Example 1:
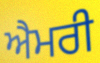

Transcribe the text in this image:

ਐਮਰੀ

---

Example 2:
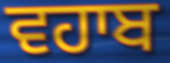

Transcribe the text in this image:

ਵਹਾਬ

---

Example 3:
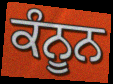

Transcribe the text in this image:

ਕੰਨੂਨ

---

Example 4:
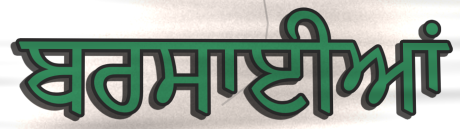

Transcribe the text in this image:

ਬਰਸਾਈਆਂ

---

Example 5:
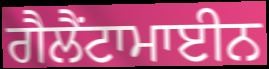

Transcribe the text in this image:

ਗੈਲੈਂਟਾਮਾਈਨ